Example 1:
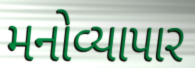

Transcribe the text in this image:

મનોવ્યાપાર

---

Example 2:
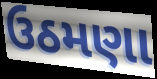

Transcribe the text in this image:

ઉઠમણા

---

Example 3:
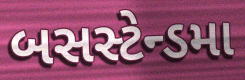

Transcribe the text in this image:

બસસ્ટેન્ડમા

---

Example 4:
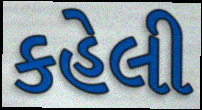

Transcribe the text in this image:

કહેલી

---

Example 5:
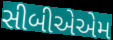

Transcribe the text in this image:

સીબીએએમ